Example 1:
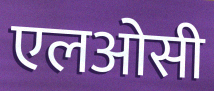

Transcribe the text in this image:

एलओसी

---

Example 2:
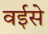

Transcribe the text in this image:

वईसे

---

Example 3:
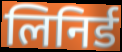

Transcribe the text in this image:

लिनिर्ड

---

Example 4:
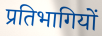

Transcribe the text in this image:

प्रतिभागियों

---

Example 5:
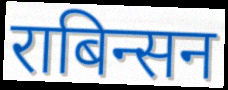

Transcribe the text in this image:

राबिन्सन